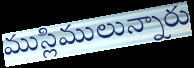
ముస్లిములున్నారు